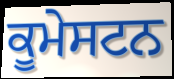
ਕੂਮੇਸਟਨ